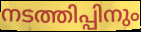
നടത്തിപ്പിനും